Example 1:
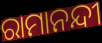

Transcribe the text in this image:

ରାମାନନ୍ଦୀ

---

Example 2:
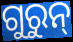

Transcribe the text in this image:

ଗୁରୁନ୍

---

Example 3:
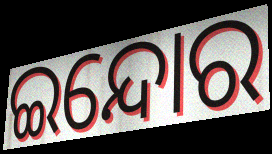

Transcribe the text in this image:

ଇନ୍ଦୋର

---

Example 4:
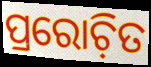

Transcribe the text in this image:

ପ୍ରରୋଚ଼ିତ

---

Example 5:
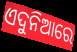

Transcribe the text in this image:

ଏଦୁନିଆରେ